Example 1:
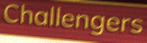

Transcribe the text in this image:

Challengers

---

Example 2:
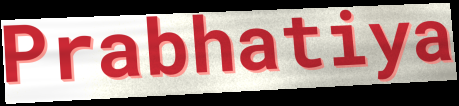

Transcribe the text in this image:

Prabhatiya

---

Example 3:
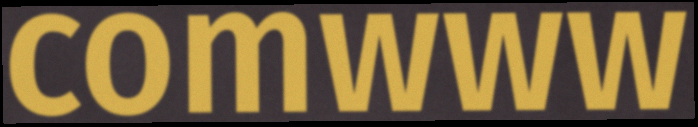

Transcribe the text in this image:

comwww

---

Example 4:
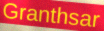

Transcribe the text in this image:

Granthsar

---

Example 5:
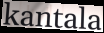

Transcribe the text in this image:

kantala